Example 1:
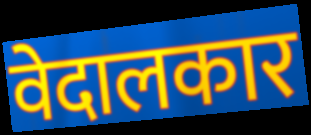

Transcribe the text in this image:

वेदालकार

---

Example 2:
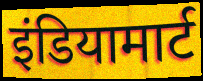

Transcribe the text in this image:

इंडियामार्ट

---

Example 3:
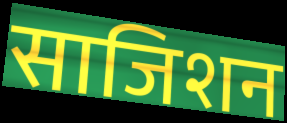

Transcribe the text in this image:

साजिशन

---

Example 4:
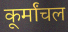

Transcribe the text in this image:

कूर्मांचल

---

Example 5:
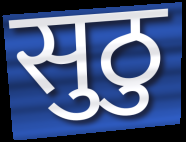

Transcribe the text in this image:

सुठु